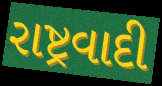
રાષ્ટ્રવાદી